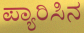
ಪ್ಯಾರಿಸಿನ